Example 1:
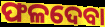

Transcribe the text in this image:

ଫଳଦେବା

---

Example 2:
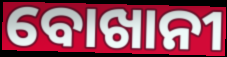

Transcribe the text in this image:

ବୋଖାନୀ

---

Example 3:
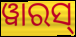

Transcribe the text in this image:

ୱାରସ୍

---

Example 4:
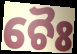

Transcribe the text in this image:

ଚୈଃ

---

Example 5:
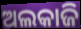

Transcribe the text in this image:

ଅଲକାଜି